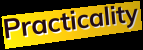
Practicality